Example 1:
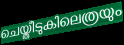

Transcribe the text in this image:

ചെയ്തീടുകിലെത്രയും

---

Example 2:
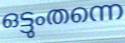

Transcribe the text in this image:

ഒട്ടുംതന്നെ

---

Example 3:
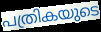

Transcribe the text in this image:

പത്രികയുടെ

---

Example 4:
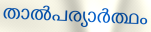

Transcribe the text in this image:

താൽപര്യാർത്ഥം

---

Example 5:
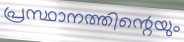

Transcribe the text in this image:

പ്രസ്ഥാനത്തിന്റെയും